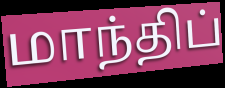
மாந்திப்